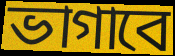
ভাগাবে